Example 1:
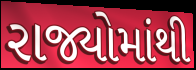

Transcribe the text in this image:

રાજ્યોમાંથી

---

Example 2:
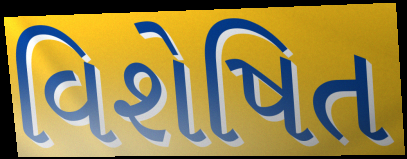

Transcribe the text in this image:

વિશેષિત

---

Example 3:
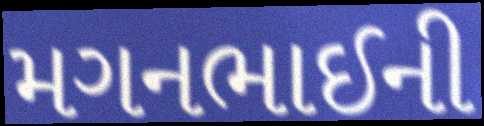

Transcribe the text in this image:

મગનભાઈની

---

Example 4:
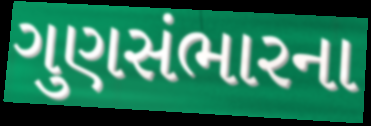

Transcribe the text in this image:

ગુણસંભારના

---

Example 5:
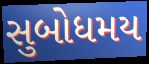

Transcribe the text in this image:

સુબોધમય